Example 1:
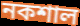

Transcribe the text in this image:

নকশাল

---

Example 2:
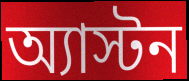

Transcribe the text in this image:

অ্যাস্টন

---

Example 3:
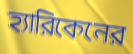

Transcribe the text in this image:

হ্যারিকেনের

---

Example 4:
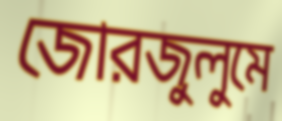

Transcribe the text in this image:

জোরজুলুমে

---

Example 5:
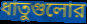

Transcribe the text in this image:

ধাতুগুলোর